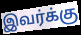
இவர்க்கு